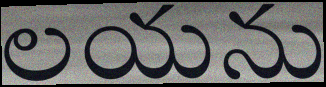
లయను